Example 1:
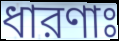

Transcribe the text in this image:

ধারণাঃ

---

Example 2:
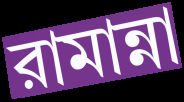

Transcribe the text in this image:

রামান্না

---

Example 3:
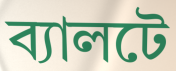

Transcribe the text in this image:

ব্যালটে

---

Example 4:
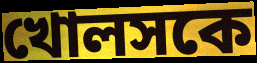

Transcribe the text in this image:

খোলসকে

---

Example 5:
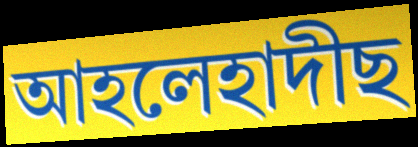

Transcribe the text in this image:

আহলেহাদীছ